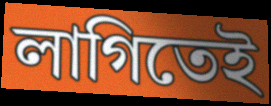
লাগিতেই